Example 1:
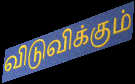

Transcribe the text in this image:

விடுவிக்கும்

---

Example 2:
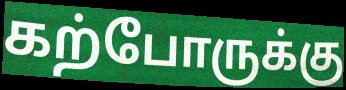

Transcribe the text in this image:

கற்போருக்கு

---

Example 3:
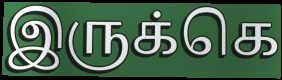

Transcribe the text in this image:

இருக்கெ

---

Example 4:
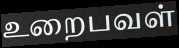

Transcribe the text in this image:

உறைபவள்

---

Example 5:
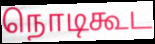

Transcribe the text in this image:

நொடிகூட